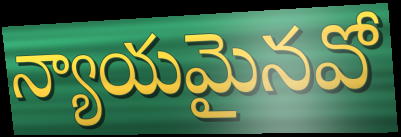
న్యాయమైనవో